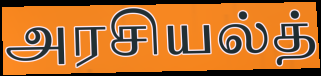
அரசியல்த்